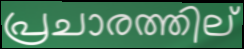
പ്രചാരത്തില്